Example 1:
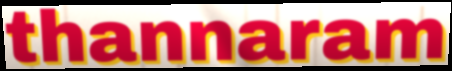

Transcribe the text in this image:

thannaram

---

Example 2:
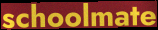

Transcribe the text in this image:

schoolmate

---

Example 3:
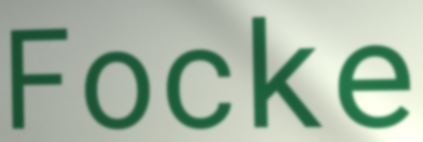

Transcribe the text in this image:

Focke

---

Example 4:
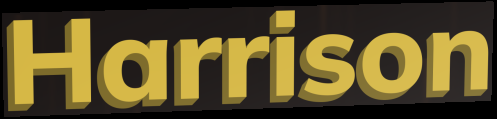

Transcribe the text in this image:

Harrison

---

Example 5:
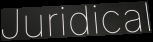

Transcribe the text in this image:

Juridical